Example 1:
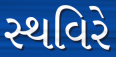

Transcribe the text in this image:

સ્થવિરે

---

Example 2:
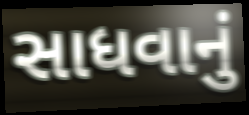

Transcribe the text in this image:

સાધવાનું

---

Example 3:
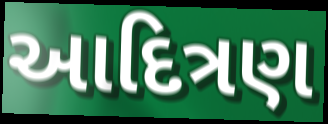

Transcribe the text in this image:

આદિત્રણ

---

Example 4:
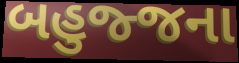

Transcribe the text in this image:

બહુજ્જના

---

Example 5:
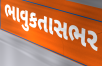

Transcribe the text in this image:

ભાવુકતાસભર